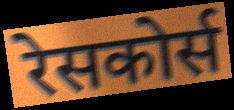
रेसकोर्स